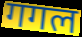
गगल